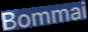
Bommai